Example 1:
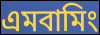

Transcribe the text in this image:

এমবামিং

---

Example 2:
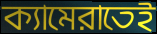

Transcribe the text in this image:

ক্যামেরাতেই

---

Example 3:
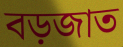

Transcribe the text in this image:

বড়জাত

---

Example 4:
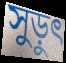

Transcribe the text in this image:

সুড়ুৎ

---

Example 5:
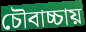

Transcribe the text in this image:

চৌবাচ্চায়